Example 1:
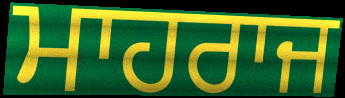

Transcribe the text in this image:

ਮਾਹਰਾਜ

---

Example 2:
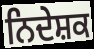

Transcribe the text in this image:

ਨਿਦੇਸ਼ਕ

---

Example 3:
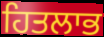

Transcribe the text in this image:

ਹਿਤਲਾਭ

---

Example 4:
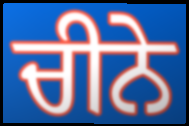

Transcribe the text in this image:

ਚੀਨੇ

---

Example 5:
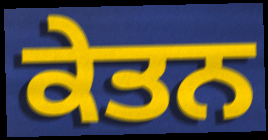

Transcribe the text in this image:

ਕੇਤਨ